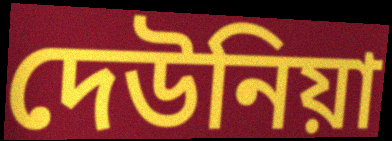
দেউনিয়া